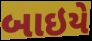
બાઇયે